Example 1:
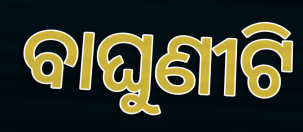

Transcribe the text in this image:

ବାଘୁଣୀଟି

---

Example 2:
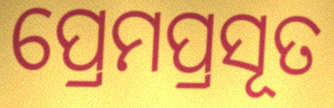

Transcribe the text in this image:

ପ୍ରେମପ୍ରସୂତ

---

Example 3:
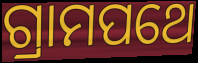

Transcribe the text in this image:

ଗ୍ରାମପଥେ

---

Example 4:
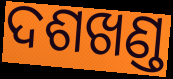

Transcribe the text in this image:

ଦଶଖଣ୍ଡ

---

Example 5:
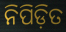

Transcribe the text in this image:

ନିପିଡ଼ିତ